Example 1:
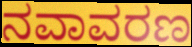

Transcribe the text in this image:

ನವಾವರಣ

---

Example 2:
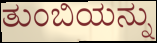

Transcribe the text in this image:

ತುಂಬಿಯನ್ನು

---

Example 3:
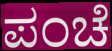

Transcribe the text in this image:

ಪಂಚೆ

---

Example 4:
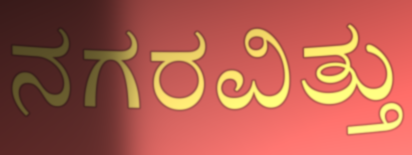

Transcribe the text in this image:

ನಗರವಿತ್ತು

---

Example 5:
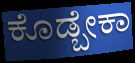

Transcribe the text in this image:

ಕೊಡ್ಬೇಕಾ